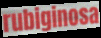
rubiginosa